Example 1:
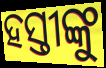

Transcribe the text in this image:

ହସ୍ତୀଙ୍କୁ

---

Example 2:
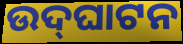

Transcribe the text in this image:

ଉଦ୍‍ଘାଟନ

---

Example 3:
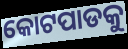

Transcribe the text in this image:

କୋଟପାଡକୁ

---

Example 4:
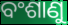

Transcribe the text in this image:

ବଂଶାଣୁ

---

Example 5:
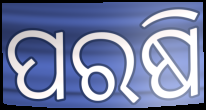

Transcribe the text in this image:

ପରଷି